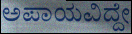
ಅಪಾಯವಿದ್ದೇ